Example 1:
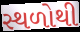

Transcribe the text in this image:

સ્થળોથી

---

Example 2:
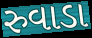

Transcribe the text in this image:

રુવાડા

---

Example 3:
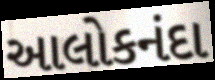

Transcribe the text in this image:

આલોકનંદા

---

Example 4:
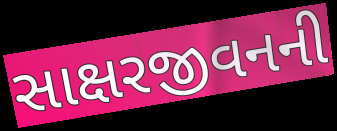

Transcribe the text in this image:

સાક્ષરજીવનની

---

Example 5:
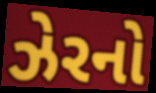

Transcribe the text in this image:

ઝેરનો